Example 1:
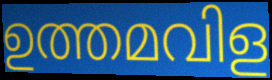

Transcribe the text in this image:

ഉത്തമവിള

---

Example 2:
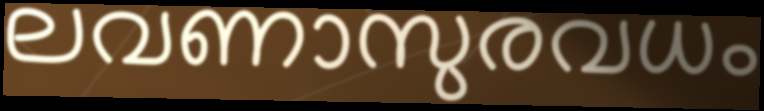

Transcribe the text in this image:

ലവണാസുരവധം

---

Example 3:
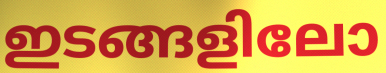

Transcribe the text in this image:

ഇടങ്ങളിലോ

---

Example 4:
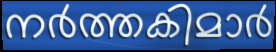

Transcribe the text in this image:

നർത്തകിമാർ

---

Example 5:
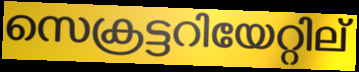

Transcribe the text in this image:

സെക്രട്ടറിയേറ്റില്